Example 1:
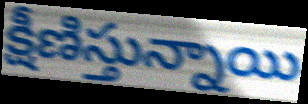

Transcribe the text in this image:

క్షీణిస్తున్నాయి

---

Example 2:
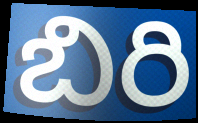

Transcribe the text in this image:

బిరి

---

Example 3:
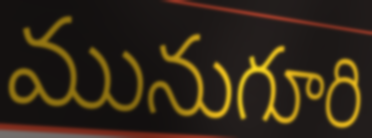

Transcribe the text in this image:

మునుగూరి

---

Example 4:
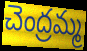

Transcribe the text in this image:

చెంద్రమ్మ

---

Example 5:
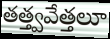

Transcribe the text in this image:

తత్త్వవేత్తలూ